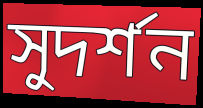
সুদৰ্শন